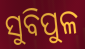
ସୁବିପୁଳ